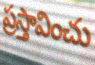
ప్రస్తావించు